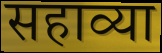
सहाव्या